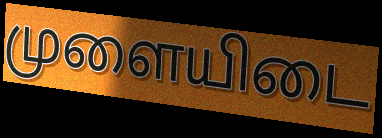
முளையிடை